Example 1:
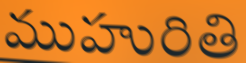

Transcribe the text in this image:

ముహురితి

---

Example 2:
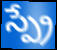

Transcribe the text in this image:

స్ప్రే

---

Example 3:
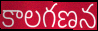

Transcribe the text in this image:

కాలగణన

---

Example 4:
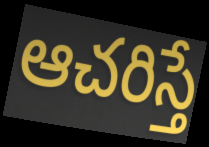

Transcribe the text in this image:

ఆచరిస్తే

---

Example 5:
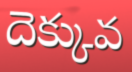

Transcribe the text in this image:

దెక్కువ